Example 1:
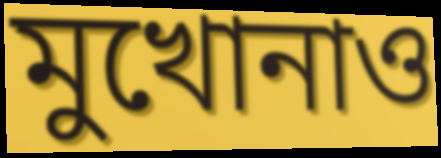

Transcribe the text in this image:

মুখোনাও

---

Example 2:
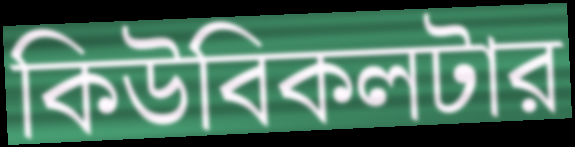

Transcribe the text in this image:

কিউবিকলটার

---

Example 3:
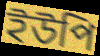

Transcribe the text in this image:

ইউপি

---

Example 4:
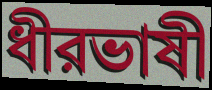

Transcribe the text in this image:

ধীরভাষী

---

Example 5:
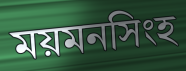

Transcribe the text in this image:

ময়মনসিংহ